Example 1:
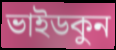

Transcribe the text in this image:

ভাইডকুন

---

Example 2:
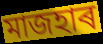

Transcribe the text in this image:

মাজহাৰ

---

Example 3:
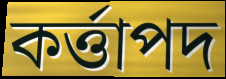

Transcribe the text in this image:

কৰ্ত্তাপদ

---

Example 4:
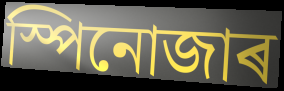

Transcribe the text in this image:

স্পিনোজাৰ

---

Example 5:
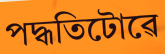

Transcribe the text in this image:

পদ্ধতিটোৱে